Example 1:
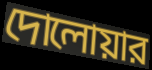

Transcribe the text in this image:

দোলোয়ার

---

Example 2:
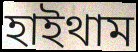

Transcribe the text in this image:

হাইথাম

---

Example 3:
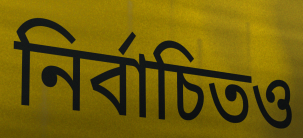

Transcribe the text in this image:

নির্বাচিতও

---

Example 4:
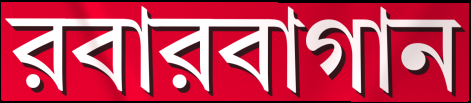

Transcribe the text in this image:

রবারবাগান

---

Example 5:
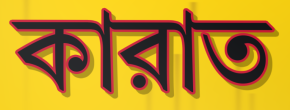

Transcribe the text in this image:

কারাত